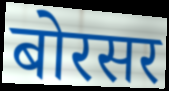
बोरसर